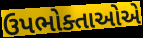
ઉપભોક્તાઓએ